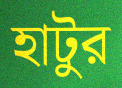
হাটুর